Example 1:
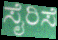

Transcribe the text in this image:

ಸೈರಿಸೆ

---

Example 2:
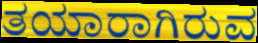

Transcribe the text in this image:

ತಯಾರಾಗಿರುವ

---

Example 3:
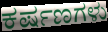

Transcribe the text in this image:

ಕರ್ಷಣಗಳು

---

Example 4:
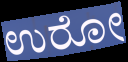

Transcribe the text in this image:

ಉರೋ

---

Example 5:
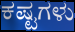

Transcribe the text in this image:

ಕಷ್ಟಗಳು